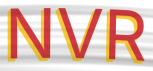
NVR